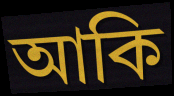
আকি